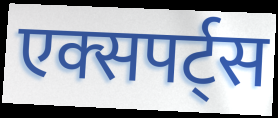
एक्‍सपर्ट्स